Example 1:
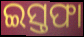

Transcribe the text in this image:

ଇସ୍ତଫା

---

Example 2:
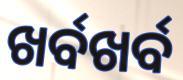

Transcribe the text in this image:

ଖର୍ବଖର୍ବ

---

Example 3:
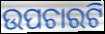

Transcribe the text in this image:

ଉପଚାରଟି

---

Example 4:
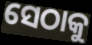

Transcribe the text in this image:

ସେଠାକୁ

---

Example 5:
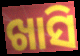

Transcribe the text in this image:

ଖାସି